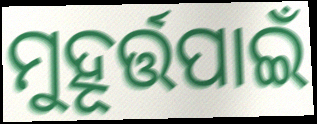
ମୁହୂର୍ତ୍ତପାଇଁ